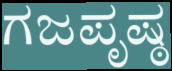
ಗಜಪೃಷ್ಠ